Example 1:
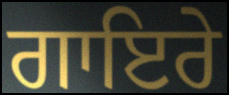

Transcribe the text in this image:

ਗਾਇਰੇ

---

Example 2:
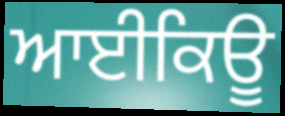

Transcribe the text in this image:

ਆਈਕਿਊ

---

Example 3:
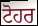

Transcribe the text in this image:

ਟੋਹਰ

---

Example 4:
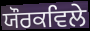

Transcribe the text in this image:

ਯੌਰਕਵਿਲੇ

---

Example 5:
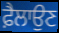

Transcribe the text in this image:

ਫ਼ੈਲਾਉਣ